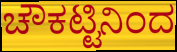
ಚೌಕಟ್ಟಿನಿಂದ